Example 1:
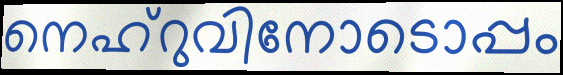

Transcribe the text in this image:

നെഹ്റുവിനോടൊപ്പം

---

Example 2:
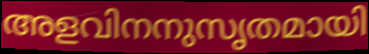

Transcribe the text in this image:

അളവിനനുസൃതമായി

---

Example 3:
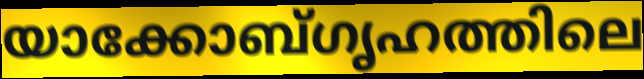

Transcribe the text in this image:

യാക്കോബ്ഗൃഹത്തിലെ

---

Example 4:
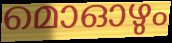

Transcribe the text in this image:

മൊഓഴും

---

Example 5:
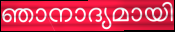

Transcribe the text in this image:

ഞാനാദ്യമായി